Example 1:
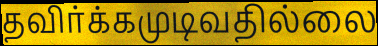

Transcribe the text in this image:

தவிர்க்கமுடிவதில்லை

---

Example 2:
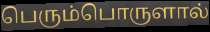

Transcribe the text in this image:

பெரும்பொருளால்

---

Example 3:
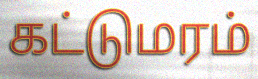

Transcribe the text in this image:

கட்டுமரம்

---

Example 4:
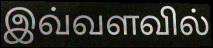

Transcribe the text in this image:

இவ்வளவில்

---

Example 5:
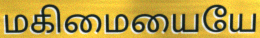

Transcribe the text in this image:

மகிமையையே